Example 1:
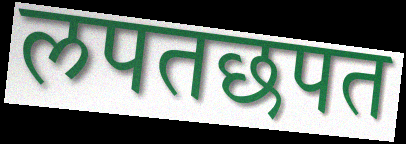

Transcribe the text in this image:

लपतछपत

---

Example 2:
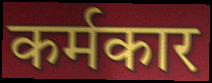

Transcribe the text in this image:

कर्मकार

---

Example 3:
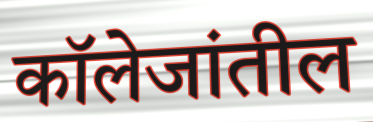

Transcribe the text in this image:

कॉलेजांतील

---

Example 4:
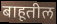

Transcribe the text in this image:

बाहूतील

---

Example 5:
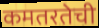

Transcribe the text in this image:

कमतरतेची